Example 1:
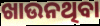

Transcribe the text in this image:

ଖାଉନଥିବା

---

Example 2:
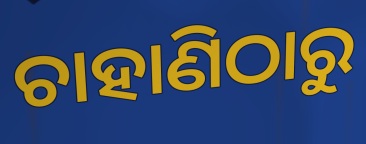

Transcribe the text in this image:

ଚାହାଣିଠାରୁ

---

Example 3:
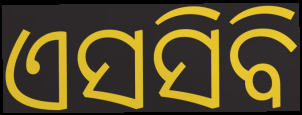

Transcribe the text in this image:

ଏସସିବି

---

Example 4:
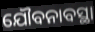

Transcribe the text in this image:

ଯୌବନାବସ୍ଥା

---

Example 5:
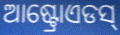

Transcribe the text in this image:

ଆଷ୍ଟ୍ରୋଏଡସ୍